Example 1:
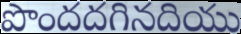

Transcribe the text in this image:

పొందదగినదియు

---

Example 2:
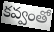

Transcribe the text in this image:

కవ్వంతో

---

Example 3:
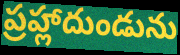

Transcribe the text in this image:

ప్రహ్లాదుండును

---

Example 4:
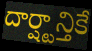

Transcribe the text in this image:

దార్ష్టాన్తికే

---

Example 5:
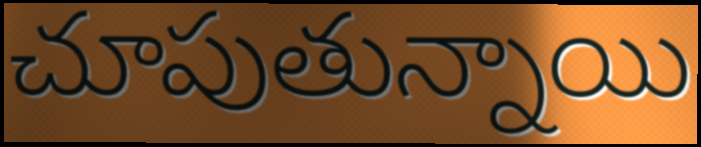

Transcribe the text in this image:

చూపుతున్నాయి